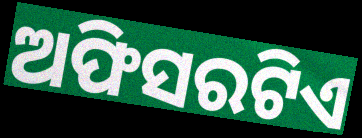
ଅଫିସରଟିଏ